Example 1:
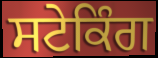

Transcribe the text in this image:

ਸਟੇਕਿੰਗ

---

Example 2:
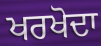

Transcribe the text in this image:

ਖਰਖੋਦਾ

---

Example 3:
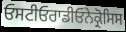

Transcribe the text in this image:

ਓਸਟੀਓਰਾਡੀਓਨੇਕ੍ਰੋਸਿਸ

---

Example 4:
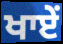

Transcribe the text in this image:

ਖਾਏਂ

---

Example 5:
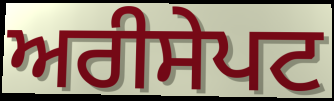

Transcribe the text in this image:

ਅਰੀਸੇਪਟ